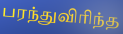
பரந்துவிரிந்த